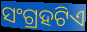
ସଂଗ୍ରହଟିଏ